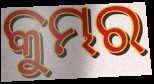
କୁମ୍ଭର